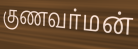
குணவர்மன்